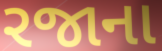
રજાના